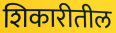
शिकारीतील